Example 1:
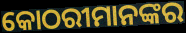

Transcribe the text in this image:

କୋଠରୀମାନଙ୍କର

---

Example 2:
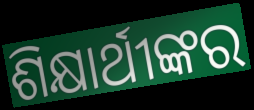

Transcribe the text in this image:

ଶିକ୍ଷାର୍ଥୀଙ୍କର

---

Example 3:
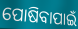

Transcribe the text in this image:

ପୋଷିବାପାଇଁ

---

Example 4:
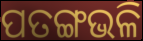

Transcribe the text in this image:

ପତଙ୍ଗଭଳି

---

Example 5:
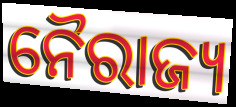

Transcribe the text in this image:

ନୈରାଜ୍ୟ